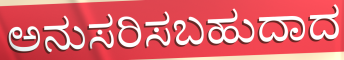
ಅನುಸರಿಸಬಹುದಾದ